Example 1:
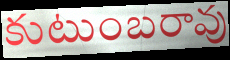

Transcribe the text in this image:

కుటుంబరావు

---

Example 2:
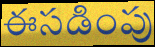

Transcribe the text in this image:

ఈసడింపు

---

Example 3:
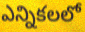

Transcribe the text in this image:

ఎన్నికలలో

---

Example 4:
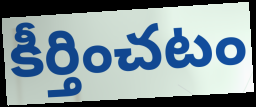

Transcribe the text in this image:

కీర్తించటం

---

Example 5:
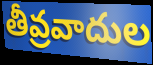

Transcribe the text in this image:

తీవ్రవాదుల